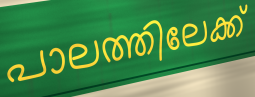
പാലത്തിലേക്ക്